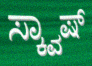
ಸ್ಕ್ವಾಷ್